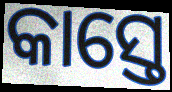
କାସ୍ତେ